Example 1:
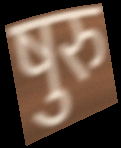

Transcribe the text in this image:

षुरु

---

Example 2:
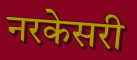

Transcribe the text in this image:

नरकेसरी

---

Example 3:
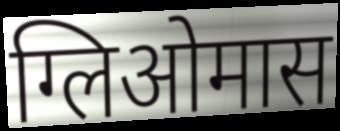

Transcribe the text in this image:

ग्लिओमास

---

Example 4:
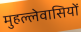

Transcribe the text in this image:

मुहल्लेवासियों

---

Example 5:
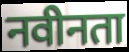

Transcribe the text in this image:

नवीनता